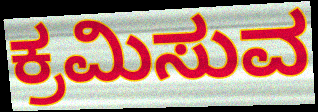
ಕ್ರಮಿಸುವ